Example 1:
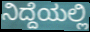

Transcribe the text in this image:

ನಿದ್ದೆಯಲ್ಲಿ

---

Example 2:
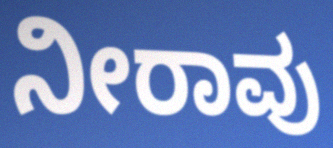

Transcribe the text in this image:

ನೀರಾವು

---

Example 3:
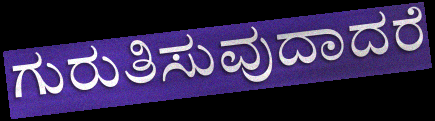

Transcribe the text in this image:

ಗುರುತಿಸುವುದಾದರೆ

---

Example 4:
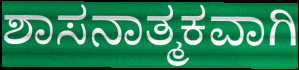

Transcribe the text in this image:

ಶಾಸನಾತ್ಮಕವಾಗಿ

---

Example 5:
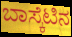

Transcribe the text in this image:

ಬಾಸ್ಕೆಟಿನ